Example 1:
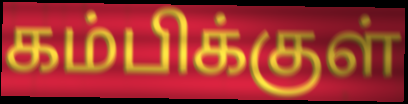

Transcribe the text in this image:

கம்பிக்குள்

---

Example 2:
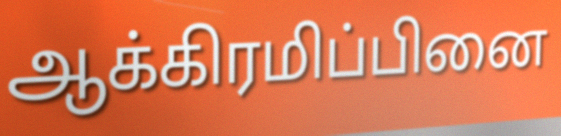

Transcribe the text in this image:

ஆக்கிரமிப்பினை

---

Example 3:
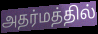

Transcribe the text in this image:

அதர்மத்தில்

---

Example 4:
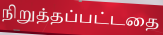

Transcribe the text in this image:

நிறுத்தப்பட்டதை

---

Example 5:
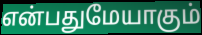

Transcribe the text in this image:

என்பதுமேயாகும்